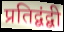
प्रतिद्बंद्बी